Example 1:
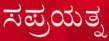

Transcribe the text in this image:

ಸಪ್ರಯತ್ನ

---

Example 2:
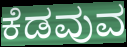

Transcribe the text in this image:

ಕೆಡವುವ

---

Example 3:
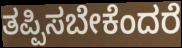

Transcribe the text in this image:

ತಪ್ಪಿಸಬೇಕೆಂದರೆ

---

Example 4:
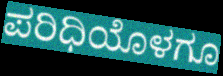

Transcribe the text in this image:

ಪರಿಧಿಯೊಳಗೂ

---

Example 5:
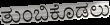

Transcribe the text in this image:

ತುಂಬಿಕೊಡಲು